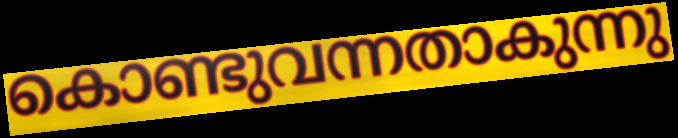
കൊണ്ടുവന്നതാകുന്നു